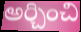
అర్చించి